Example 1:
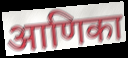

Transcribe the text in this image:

आणिका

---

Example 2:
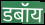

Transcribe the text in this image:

डबॉय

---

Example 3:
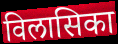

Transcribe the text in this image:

विलासिका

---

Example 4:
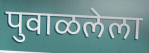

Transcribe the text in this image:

पुवाळलेला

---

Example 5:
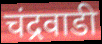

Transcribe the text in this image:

चंद्रवाडी